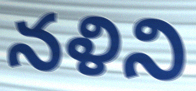
నళిని